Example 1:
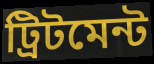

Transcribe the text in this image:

ট্রিটমেন্ট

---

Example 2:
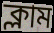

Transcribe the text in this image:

ক্লাম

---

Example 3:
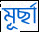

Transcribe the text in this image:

মূর্ছা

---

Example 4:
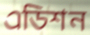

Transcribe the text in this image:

এডিশন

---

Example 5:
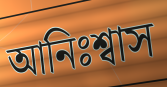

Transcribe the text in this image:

আনিঃশ্বাস